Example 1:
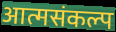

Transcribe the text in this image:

आत्मसंकल्प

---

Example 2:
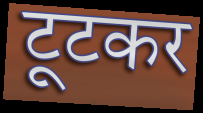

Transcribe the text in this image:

टूटकर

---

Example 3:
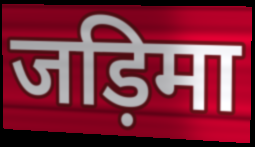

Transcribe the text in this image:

जड़िमा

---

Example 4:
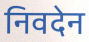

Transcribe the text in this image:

निवदेन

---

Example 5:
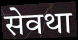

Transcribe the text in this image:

सेवथा